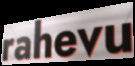
rahevu